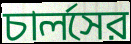
চার্লসের